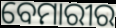
ବେମାରୀର